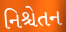
નિશ્ચેતન